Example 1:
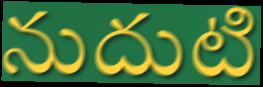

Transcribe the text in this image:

నుదుటి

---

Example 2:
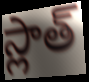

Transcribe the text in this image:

స్లాత్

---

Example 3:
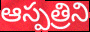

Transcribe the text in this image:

ఆస్పత్రిని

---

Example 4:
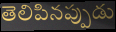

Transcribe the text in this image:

తెలిపినప్పుడు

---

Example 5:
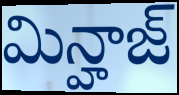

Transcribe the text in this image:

మిన్హాజ్